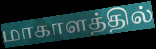
மாகாளத்தில்